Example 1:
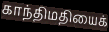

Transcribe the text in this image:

காந்திமதியைக்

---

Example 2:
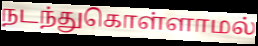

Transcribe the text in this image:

நடந்துகொள்ளாமல்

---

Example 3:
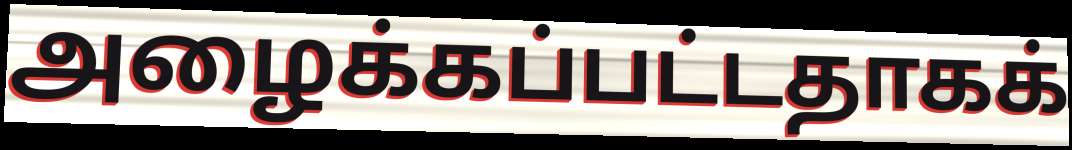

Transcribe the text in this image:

அழைக்கப்பட்டதாகக்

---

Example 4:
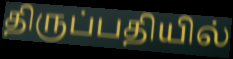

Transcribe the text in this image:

திருப்பதியில்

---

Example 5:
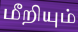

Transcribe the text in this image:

மீறியும்